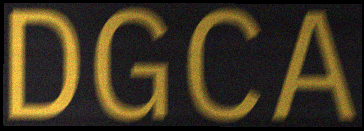
DGCA